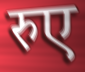
रुए